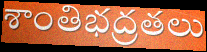
శాంతిభద్రతలు